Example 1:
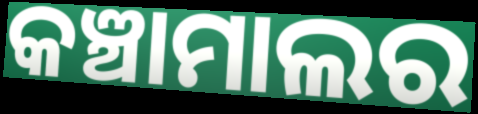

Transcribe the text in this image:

କଞ୍ଚାମାଲର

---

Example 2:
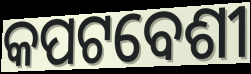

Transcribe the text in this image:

କପଟବେଶୀ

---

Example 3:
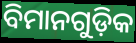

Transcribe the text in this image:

ବିମାନଗୁଡ଼ିକ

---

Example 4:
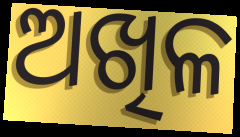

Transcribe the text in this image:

ଅଖିଳ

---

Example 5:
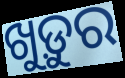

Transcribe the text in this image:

ଖୁଡ଼ୁର